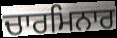
ਚਾਰਮਿਨਾਰ